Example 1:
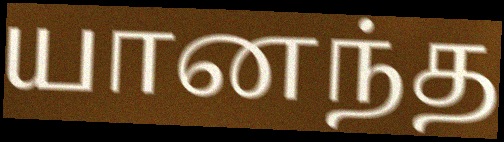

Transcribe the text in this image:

யானந்த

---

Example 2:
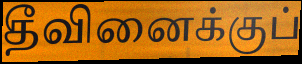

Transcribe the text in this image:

தீவினைக்குப்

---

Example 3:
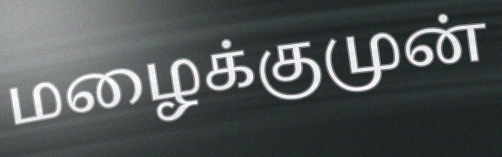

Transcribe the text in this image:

மழைக்குமுன்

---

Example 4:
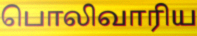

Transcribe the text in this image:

பொலிவாரிய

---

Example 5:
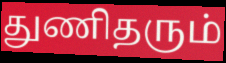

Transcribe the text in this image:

துணிதரும்